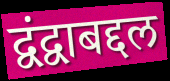
द्वंद्वाबद्दल